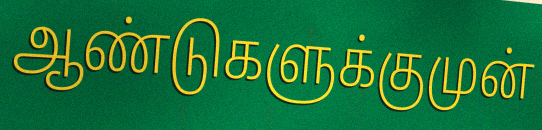
ஆண்டுகளுக்குமுன்